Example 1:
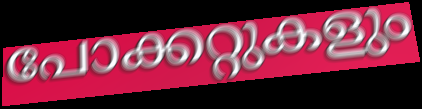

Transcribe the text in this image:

പോക്കറ്റുകളും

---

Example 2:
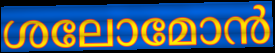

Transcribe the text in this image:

ശലോമോൻ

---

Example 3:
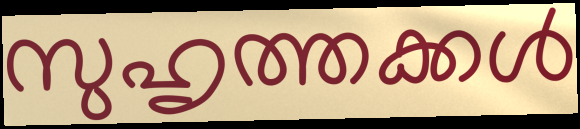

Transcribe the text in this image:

സുഹൃത്തക്കൾ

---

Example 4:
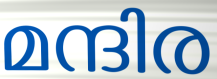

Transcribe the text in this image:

മന്ദിര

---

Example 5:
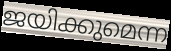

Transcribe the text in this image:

ജയിക്കുമെന്ന